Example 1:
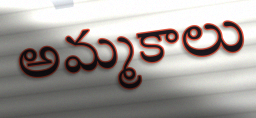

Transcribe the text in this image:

అమ్మకాలు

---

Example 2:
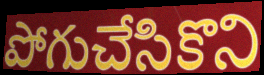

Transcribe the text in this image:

పోగుచేసికొని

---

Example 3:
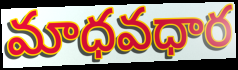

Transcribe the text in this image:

మాధవధార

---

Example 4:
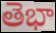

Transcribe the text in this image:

తెభా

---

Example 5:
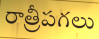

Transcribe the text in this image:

రాత్రీపగలు